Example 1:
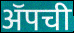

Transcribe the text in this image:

ॲपची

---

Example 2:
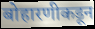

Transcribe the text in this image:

बोहारणीकडून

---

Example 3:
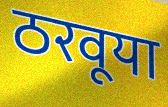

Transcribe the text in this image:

ठरवूया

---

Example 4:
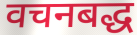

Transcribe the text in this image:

वचनबद्ध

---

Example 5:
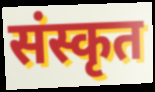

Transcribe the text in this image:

संस्कृत